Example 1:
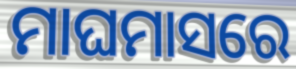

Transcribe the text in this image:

ମାଘମାସରେ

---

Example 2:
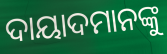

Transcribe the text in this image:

ଦାୟାଦମାନଙ୍କୁ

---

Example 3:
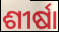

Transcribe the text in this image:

ଶୀର୍ଷା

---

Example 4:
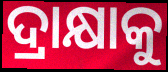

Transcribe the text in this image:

ଦ୍ରାକ୍ଷାକୁ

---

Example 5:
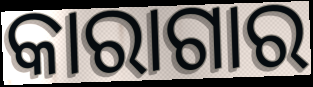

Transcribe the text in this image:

କାରାଗାର